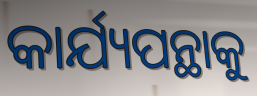
କାର୍ଯ୍ୟପନ୍ଥାକୁ